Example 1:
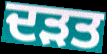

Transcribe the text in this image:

ਦੜਤ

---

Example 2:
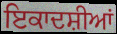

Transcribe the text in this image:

ਇਕਾਦਸ਼ੀਆਂ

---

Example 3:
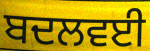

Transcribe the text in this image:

ਬਦਲਵਈ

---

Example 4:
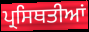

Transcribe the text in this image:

ਪ੍ਰਸਿਥਤੀਆਂ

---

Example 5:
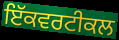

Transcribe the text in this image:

ਇੱਕਵਰਟੀਕਲ